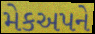
મેકઅપને